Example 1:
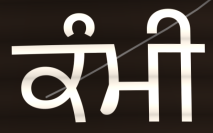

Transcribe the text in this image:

ਕੰਮੀ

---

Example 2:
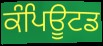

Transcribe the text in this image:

ਕੰਪਿਊਟਡ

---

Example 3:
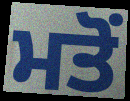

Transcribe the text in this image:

ਮਤੋਂ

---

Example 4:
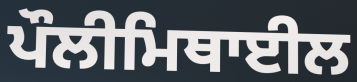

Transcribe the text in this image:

ਪੌਲੀਮਿਥਾਈਲ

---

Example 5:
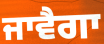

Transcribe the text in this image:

ਜਾਵੈਗਾ